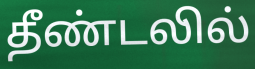
தீண்டலில்